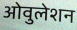
ओवुलेशन